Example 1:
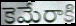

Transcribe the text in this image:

కెమేరాకి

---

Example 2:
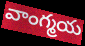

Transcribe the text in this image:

వాంగ్మయ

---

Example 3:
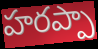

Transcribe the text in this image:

హరప్పా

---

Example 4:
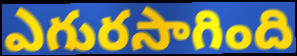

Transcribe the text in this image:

ఎగురసాగింది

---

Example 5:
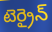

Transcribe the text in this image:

టెర్రైన్